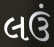
લઉં